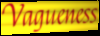
Vagueness